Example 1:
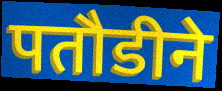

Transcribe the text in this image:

पतौडीने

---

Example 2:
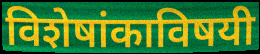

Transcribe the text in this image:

विशेषांकाविषयी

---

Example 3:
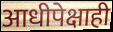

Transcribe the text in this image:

आधीपेक्षाही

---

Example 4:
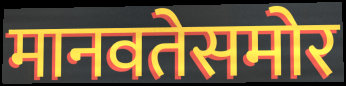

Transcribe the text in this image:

मानवतेसमोर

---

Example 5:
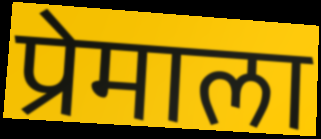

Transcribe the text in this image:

प्रेमाला